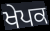
ਖੇਪਕ